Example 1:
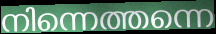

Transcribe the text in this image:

നിന്നെത്തന്നെ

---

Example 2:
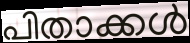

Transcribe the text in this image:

പിതാക്കൾ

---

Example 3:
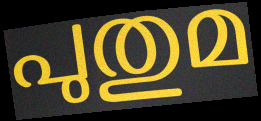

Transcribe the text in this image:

പുതുമ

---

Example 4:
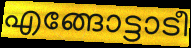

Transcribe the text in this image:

എങ്ങോട്ടാടീ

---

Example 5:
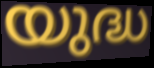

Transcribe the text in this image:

യുദ്ധ